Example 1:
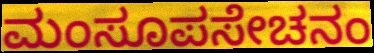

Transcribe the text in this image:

ಮಂಸೂಪಸೇಚನಂ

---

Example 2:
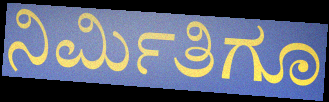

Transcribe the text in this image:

ನಿರ್ಮಿತಿಗೂ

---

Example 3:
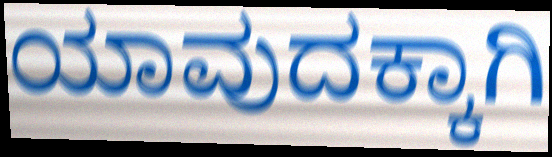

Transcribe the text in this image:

ಯಾವುದಕ್ಕಾಗಿ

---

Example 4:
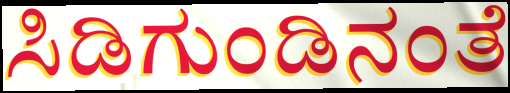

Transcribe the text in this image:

ಸಿಡಿಗುಂಡಿನಂತೆ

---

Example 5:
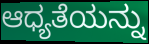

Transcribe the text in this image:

ಆಧ್ಯತೆಯನ್ನು